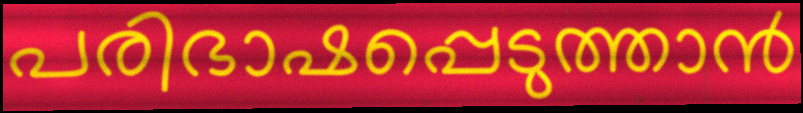
പരിഭാഷപ്പെടുത്താൻ